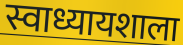
स्वाध्यायशाला